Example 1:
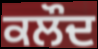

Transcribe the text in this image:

ਕਲੌਦ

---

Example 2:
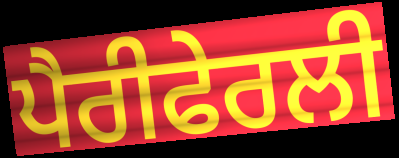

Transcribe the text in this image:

ਪੈਰੀਫੇਰਲੀ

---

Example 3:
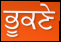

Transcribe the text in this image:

ਭੂਕਣੇ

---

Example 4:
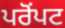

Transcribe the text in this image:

ਪਰੋਂਪਟ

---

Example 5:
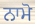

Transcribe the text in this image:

ਨਾਮੋ